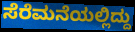
ಸೆರೆಮನೆಯಲ್ಲಿದ್ದು